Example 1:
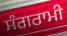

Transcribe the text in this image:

ਸੰਗਰਾਮੀ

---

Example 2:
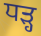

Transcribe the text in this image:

ਧੜ੍ਹ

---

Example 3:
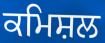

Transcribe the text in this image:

ਕਮਿਸ਼ਲ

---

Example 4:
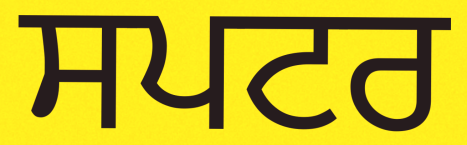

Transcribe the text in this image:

ਸਪਟਰ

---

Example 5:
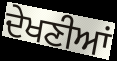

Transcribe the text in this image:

ਦੇਖਣੀਆਂ